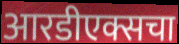
आरडीएक्सचा